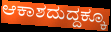
ಆಕಾಶದುದ್ದಕ್ಕೂ